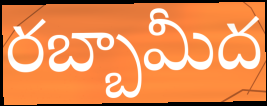
రబ్బామీద